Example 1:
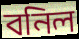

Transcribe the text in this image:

বনিল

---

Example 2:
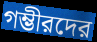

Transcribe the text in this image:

গম্ভীরদের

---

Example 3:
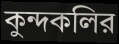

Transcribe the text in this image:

কুন্দকলির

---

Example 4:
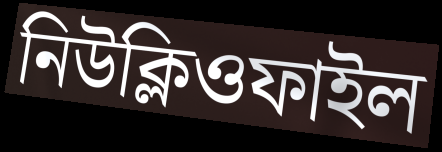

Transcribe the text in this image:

নিউক্লিওফাইল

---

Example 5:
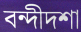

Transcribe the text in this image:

বন্দীদশা